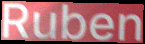
Ruben